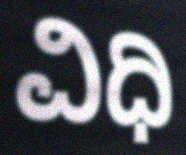
ವಿಧಿ